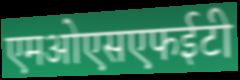
एमओएसएफईटी